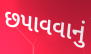
છપાવવાનું